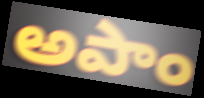
అపాం